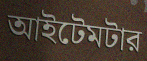
আইটেমটার